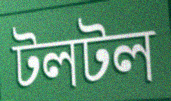
টলটল